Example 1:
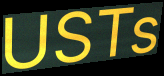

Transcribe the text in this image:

USTs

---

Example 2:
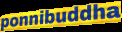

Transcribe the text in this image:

ponnibuddha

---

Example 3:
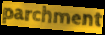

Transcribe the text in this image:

parchment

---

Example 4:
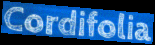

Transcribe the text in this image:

Cordifolia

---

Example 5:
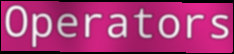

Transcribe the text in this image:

Operators